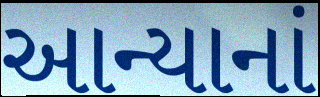
આન્યાનાં